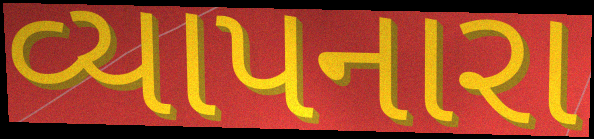
વ્યાપનારા